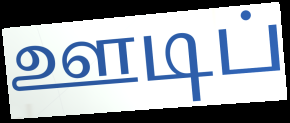
ஊடிப்